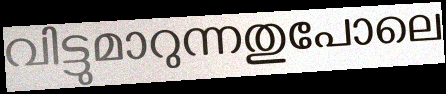
വിട്ടുമാറുന്നതുപോലെ